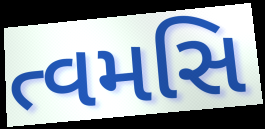
ત્વમસિ